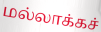
மல்லாக்கச்